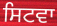
ਸਿਟਵਾ